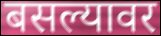
बसल्यावर